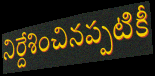
నిర్దేశించినప్పటికీ